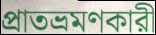
প্রাতভ্রমণকারী